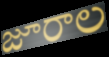
జూరాల